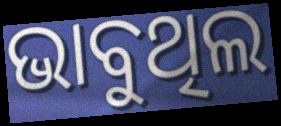
ଭାବୁଥିଲ